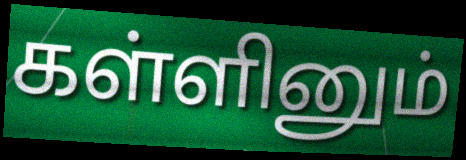
கள்ளினும்